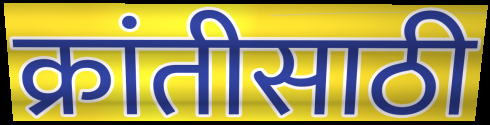
क्रांतीसाठी